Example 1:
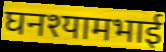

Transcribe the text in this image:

घनश्यामभाई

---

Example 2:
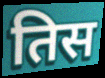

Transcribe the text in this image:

तिस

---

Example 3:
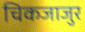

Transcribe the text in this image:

चिकजाजुर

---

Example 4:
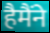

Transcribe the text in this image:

हैमैंने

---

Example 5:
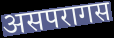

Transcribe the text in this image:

असपरागस